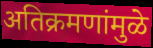
अतिक्रमणांमुळे